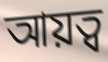
আয়ত্ব